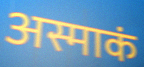
अस्माकं